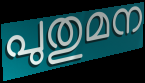
പുതുമന